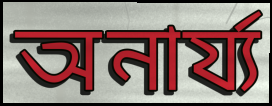
অনাৰ্য্য